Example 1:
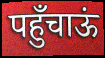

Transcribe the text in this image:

पहुँचाऊं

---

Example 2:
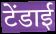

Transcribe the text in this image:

टेंडाई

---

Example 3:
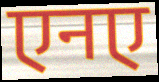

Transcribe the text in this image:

एनए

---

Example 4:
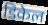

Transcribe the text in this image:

डिकेल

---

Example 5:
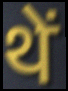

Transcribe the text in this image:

थें